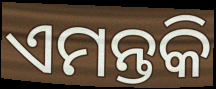
ଏମନ୍ତକି